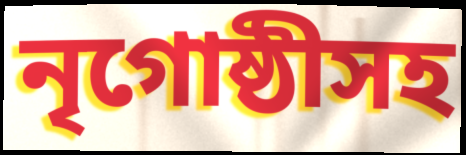
নৃগোষ্ঠীসহ